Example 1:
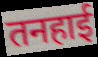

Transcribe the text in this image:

तनहाई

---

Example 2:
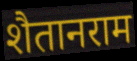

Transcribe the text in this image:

शैतानराम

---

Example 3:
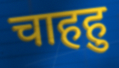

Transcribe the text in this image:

चाहहु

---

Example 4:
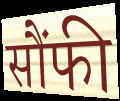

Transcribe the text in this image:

सौंफी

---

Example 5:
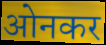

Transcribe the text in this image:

ओनकर